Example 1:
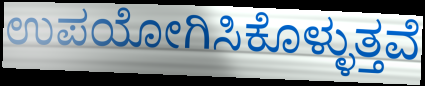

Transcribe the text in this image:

ಉಪಯೋಗಿಸಿಕೊಳ್ಳುತ್ತವೆ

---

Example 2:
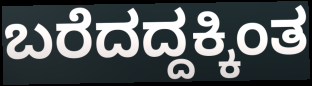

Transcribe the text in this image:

ಬರೆದದ್ದಕ್ಕಿಂತ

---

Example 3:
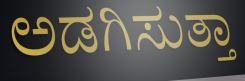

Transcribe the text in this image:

ಅಡಗಿಸುತ್ತಾ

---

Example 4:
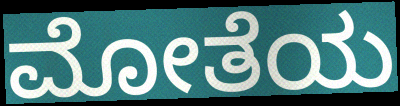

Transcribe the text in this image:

ಮೋತೆಯ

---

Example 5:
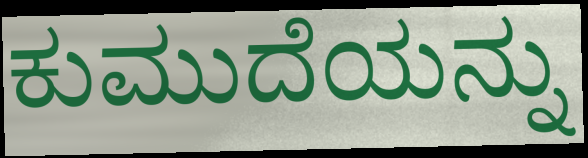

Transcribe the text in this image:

ಕುಮುದೆಯನ್ನು